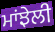
ਮਾਂਝੇਲੀ